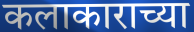
कलाकाराच्या